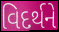
વિદર્થને